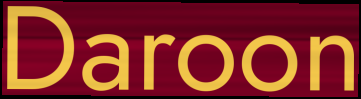
Daroon